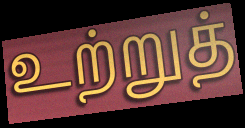
உற்றுத்